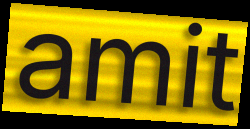
amit